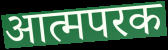
आत्मपरक